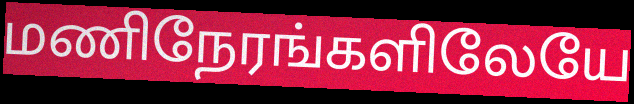
மணிநேரங்களிலேயே